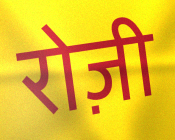
रोज़ी